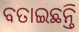
ବତାଇଛନ୍ତି